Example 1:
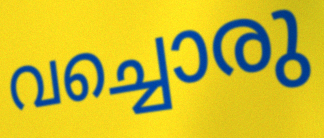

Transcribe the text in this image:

വച്ചൊരു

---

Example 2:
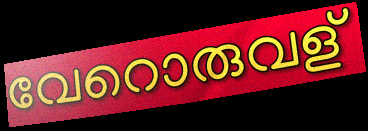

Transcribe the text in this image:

വേറൊരുവള്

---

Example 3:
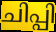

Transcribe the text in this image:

ചിപ്പി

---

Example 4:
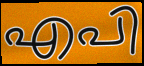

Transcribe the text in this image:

എപി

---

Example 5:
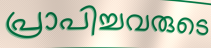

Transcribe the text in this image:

പ്രാപിച്ചവരുടെ